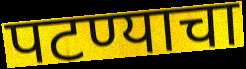
पटण्याचा